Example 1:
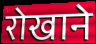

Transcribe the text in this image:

रोखाने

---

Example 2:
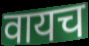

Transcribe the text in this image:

वायच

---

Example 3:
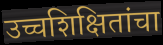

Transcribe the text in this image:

उच्चशिक्षितांचा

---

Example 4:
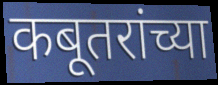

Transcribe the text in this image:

कबूतरांच्या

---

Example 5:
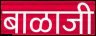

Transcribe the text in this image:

बाळाजी